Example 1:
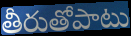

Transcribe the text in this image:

తీరుతోపాటు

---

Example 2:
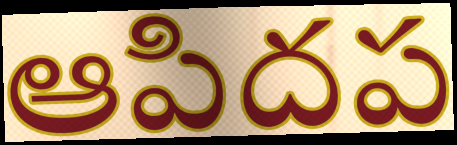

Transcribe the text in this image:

ఆపిదప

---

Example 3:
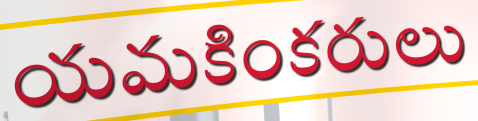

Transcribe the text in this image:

యమకింకరులు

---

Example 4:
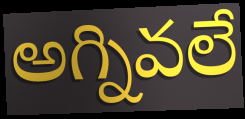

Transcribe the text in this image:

అగ్నివలే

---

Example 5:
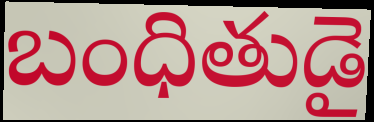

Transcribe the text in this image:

బంధితుడై